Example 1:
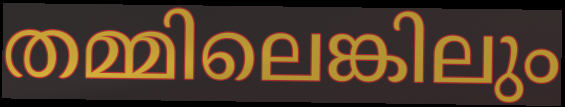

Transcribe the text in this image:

തമ്മിലെങ്കിലും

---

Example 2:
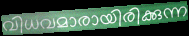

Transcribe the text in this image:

വിധവമാരായിരിക്കുന്ന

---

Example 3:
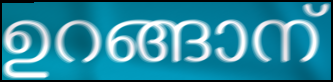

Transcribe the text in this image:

ഉറങ്ങാന്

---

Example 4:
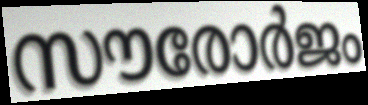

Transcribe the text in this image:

സൗരോർജം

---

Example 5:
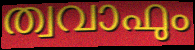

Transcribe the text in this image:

ത്വവാഫും